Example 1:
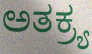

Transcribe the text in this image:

ಅತಕ್ರ್ಯ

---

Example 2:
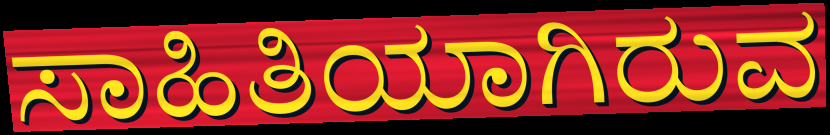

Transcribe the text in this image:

ಸಾಹಿತಿಯಾಗಿರುವ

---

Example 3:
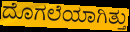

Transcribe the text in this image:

ದೊಗಲೆಯಾಗಿತ್ತು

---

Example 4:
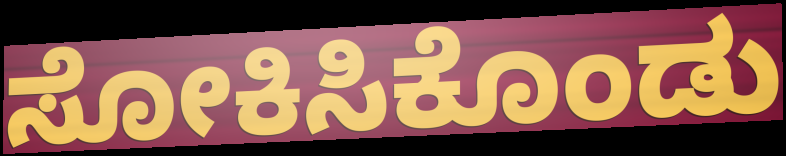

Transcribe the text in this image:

ಸೋಕಿಸಿಕೊಂಡು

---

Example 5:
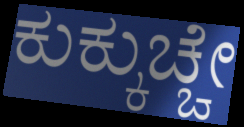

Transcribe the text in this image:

ಕುಕ್ಕುಚ್ಚೇ